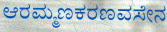
ಆರಮ್ಮಣಕರಣವಸೇನ